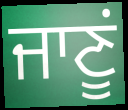
ਜਾਣੂਂ